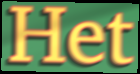
Het